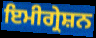
ਇਮੀਗ੍ਰੇਸ਼ਨ